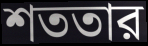
শততার